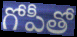
గోపీతో